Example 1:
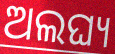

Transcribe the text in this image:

ଅଲଘ୍ୟ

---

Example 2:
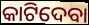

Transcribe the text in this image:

କାଟିଦେବା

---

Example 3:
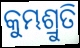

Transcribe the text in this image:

କୁମ୍ଭଶ୍ରୁତି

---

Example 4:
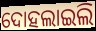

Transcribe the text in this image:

ଦୋହଲାଇଲି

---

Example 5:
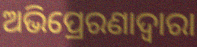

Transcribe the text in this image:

ଅଭିପ୍ରେରଣାଦ୍ୱାରା